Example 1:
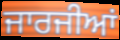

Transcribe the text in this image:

ਜਾਰਜੀਆਂ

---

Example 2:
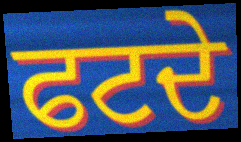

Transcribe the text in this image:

ਫਟਦੇ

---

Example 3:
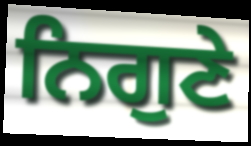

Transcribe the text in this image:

ਨਿਗੁਣੇ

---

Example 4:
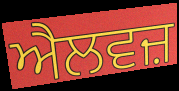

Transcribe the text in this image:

ਐਲਵਜ਼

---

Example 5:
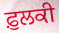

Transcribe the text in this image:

ਫ਼ੁਲਕੀ